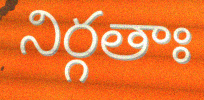
నిర్గతాః